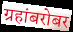
ग्रहांबरोबर